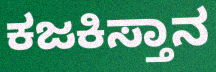
ಕಜಕಿಸ್ತಾನ